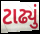
ટાઢ્યું